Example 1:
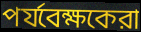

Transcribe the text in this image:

পর্যবেক্ষকেরা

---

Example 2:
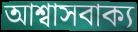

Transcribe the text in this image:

আশ্বাসবাক্য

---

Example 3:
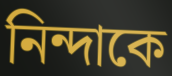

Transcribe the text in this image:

নিন্দাকে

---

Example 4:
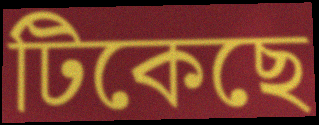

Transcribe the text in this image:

টিকেছে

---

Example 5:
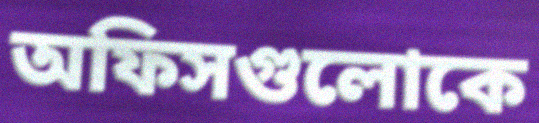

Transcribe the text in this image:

অফিসগুলোকে